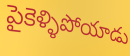
పైకెళ్ళిపోయాడు